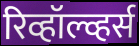
रिव्हॉल्व्हर्स